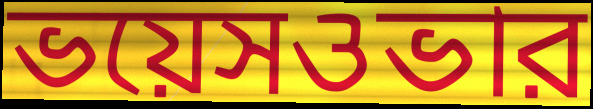
ভয়েসওভার